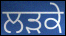
ਲਡ਼ਕੇ